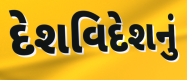
દેશવિદેશનું